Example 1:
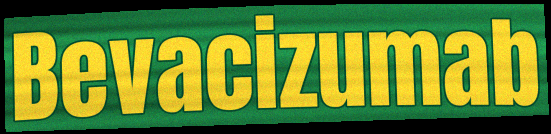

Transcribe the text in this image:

Bevacizumab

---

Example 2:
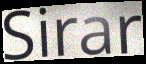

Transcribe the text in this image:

Sirar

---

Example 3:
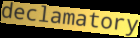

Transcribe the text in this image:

declamatory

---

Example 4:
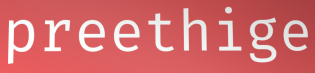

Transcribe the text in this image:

preethige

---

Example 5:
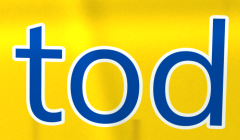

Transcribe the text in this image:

tod